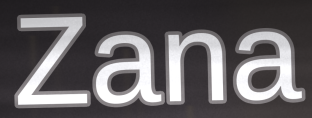
Zana